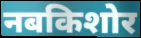
नबकिशोर